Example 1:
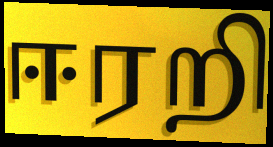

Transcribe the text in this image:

ஈரறி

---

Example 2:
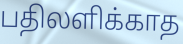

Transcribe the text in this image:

பதிலளிக்காத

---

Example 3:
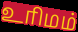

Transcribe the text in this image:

உரிமம்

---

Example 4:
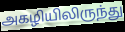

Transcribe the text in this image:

அகழியிலிருந்து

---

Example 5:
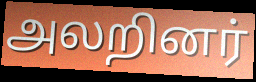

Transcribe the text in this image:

அலறினர்